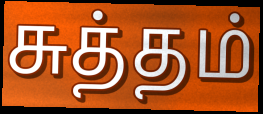
சுத்தம்